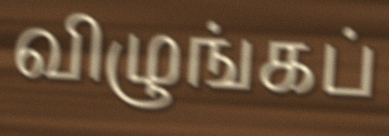
விழுங்கப்